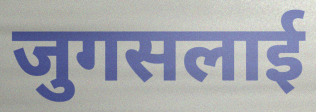
जुगसलाई